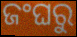
ଜଂଘରୁ